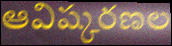
ఆవిష్కరణల